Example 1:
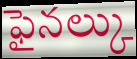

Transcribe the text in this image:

ఫైనల్కు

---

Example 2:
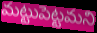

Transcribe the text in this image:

మట్టుపెట్టమని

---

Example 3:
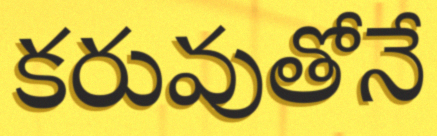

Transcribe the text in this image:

కరువుతోనే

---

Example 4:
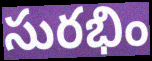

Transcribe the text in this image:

సురభిం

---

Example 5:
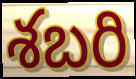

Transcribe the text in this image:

శబరి